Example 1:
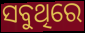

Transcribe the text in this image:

ସବୁଥିରେ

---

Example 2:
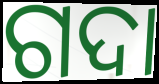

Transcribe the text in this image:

ଗଦା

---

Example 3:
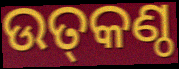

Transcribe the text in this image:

ଉତ୍‌କଣ୍ଠ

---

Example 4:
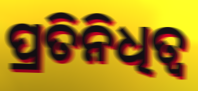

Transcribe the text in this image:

ପ୍ରତିନିଧିତ୍ବ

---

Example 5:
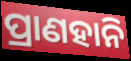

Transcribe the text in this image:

ପ୍ରାଣହାନି